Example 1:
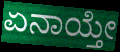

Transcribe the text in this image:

ಏನಾಯ್ತೇ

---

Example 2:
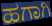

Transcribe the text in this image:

ಹಗಾಗಿ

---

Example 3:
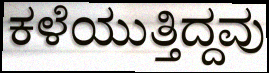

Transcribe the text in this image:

ಕಳೆಯುತ್ತಿದ್ದವು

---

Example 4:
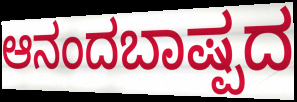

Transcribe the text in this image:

ಆನಂದಬಾಷ್ಪದ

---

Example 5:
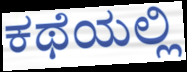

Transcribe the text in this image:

ಕಥೆಯಲ್ಲಿ